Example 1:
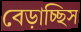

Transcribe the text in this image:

বেড়াচ্ছিস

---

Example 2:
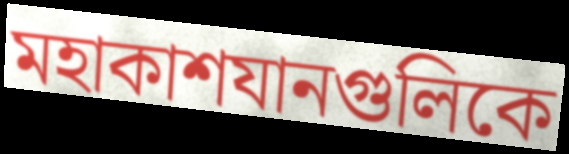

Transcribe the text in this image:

মহাকাশযানগুলিকে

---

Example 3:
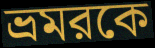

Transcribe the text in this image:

ভ্রমরকে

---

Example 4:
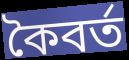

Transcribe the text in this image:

কৈবর্ত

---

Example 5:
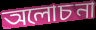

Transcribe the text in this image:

অলোচনা